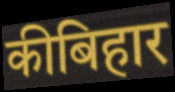
कीबिहार